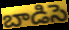
బాడిసె